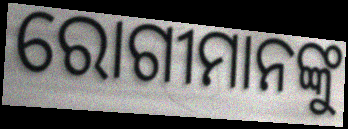
ରୋଗୀମାନଙ୍କୁ